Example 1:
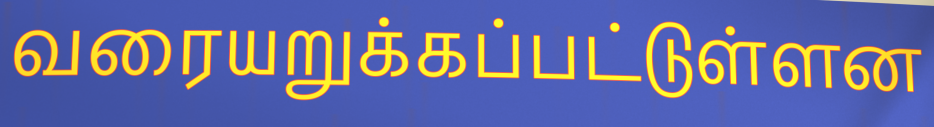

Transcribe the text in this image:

வரையறுக்கப்பட்டுள்ளன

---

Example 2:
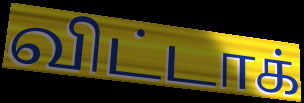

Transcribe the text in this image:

விட்டாக்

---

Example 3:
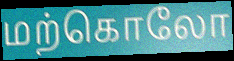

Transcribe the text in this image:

மற்கொலோ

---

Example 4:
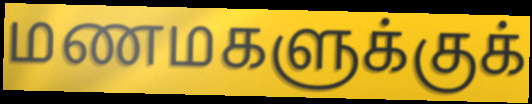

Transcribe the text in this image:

மணமகளுக்குக்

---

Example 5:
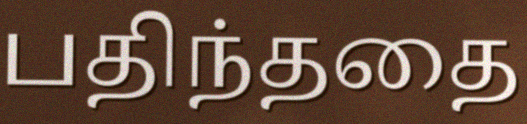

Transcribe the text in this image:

பதிந்ததை